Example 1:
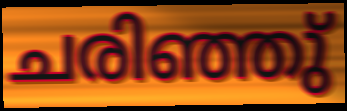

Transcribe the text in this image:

ചരിഞ്ഞു്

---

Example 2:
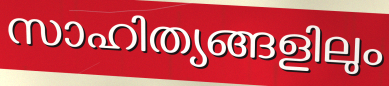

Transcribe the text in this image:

സാഹിത്യങ്ങളിലും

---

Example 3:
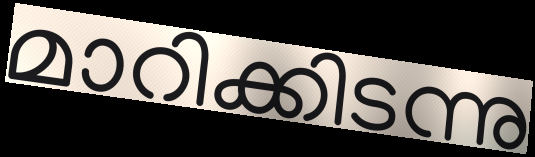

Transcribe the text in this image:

മാറിക്കിടന്നു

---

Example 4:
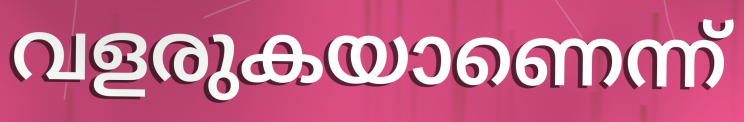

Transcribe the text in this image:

വളരുകയാണെന്ന്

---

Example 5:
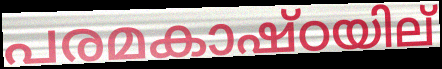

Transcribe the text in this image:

പരമകാഷ്ഠയില്